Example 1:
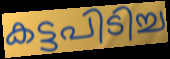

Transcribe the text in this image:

കട്ടപിടിച്ച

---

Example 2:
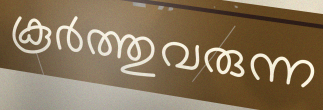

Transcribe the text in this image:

കൂർത്തുവരുന്ന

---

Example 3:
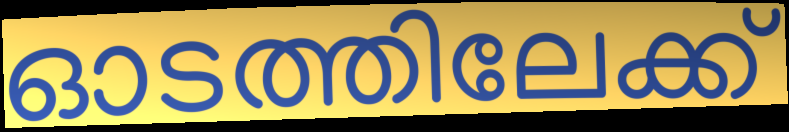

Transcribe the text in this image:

ഓടത്തിലേക്ക്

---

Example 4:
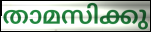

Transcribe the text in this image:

താമസിക്കു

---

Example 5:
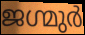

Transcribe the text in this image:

ജഗ്മുർ